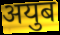
अयुब